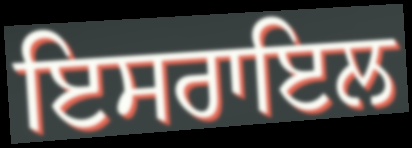
ਇਸਰਾਇਲ